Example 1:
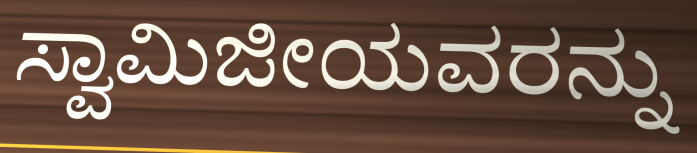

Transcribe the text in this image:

ಸ್ವಾಮಿಜೀಯವರನ್ನು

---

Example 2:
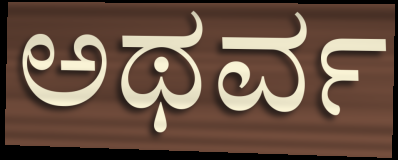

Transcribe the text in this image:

ಅಥರ್ವ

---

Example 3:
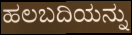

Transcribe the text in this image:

ಹಲಬದಿಯನ್ನು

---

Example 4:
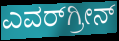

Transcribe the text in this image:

ಎವರ್‌ಗ್ರೀನ್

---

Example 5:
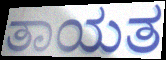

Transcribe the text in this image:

ತಾಯತ